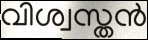
വിശ്വസ്തൻ